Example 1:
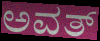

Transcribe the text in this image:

ಅವತ್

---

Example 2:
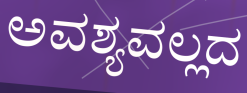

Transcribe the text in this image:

ಅವಶ್ಯವಲ್ಲದ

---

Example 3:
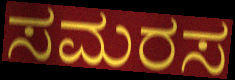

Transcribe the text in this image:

ಸಮರಸ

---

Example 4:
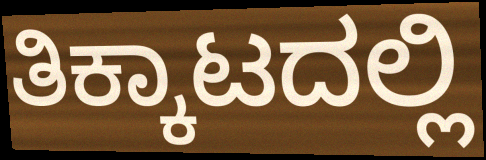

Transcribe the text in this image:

ತಿಕ್ಕಾಟದಲ್ಲಿ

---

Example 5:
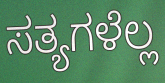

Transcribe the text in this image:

ಸತ್ಯಗಳೆಲ್ಲ